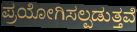
ಪ್ರಯೋಗಿಸಲ್ಪಡುತ್ತವೆ